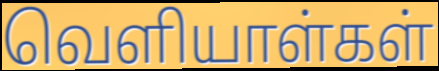
வெளியாள்கள்